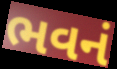
ભવનં